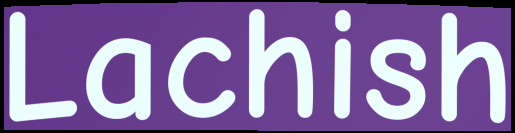
Lachish